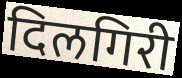
दिलगिरी